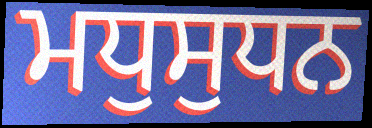
ਮਧੁਸੁਧਨ